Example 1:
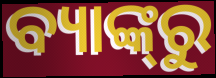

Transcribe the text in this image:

ବ୍ୟାଙ୍କ୍‌ରୁ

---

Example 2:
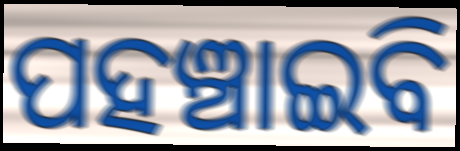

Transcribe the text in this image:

ପହଞ୍ଚାଇବି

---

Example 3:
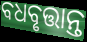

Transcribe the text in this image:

ବଧବୃତ୍ତାନ୍ତ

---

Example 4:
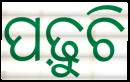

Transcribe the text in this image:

ପଢ଼ୁଚି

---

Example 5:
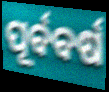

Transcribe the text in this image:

ପୂର୍ବବର୍ଷ